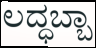
ಲದ್ಧಬ್ಬಾ